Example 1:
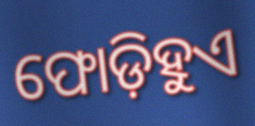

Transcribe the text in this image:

ଫୋଡ଼ିହୁଏ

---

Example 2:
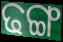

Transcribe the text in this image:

ଢଙ୍ଗ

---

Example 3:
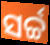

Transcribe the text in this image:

ସର୍ଚ୍ଚ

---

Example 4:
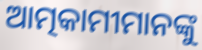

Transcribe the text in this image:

ଆତ୍ମକାମୀମାନଙ୍କୁ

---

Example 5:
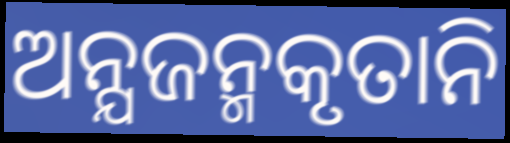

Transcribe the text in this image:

ଅନ୍ଯଜନ୍ମକୃତାନି